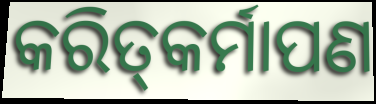
କରିତ୍‌କର୍ମାପଣ